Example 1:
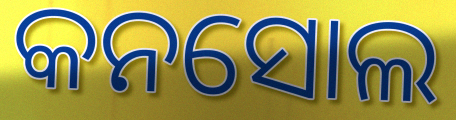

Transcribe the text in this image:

କନସୋଲ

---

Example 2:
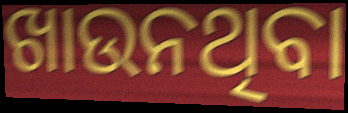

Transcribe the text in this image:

ଖାଉନଥିବା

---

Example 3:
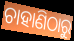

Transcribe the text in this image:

ଚାହାଣିଠାରୁ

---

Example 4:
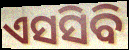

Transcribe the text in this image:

ଏସସିବି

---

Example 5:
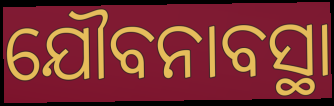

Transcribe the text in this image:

ଯୌବନାବସ୍ଥା